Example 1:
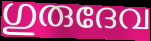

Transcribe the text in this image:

ഗുരുദേവ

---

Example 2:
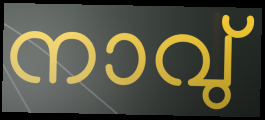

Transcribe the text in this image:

നാവു്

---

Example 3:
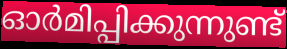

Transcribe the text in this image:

ഓർമിപ്പിക്കുന്നുണ്ട്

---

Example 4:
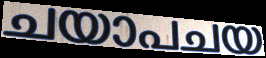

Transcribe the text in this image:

ചയാപചയ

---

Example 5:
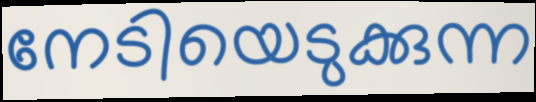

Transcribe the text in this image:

നേടിയെടുക്കുന്ന